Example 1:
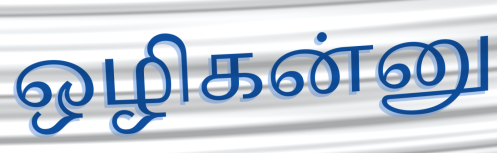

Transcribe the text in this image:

ஒழிகன்னு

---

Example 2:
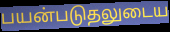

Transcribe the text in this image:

பயன்படுதலுடைய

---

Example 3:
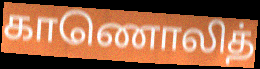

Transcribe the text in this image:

காணொலித்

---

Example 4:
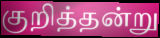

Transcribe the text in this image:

குறித்தன்று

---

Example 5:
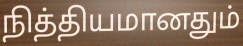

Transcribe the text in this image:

நித்தியமானதும்